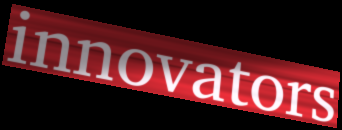
innovators